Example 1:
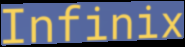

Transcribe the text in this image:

Infinix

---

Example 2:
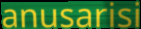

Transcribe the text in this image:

anusarisi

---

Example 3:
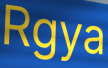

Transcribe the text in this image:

Rgya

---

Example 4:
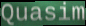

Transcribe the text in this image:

Quasim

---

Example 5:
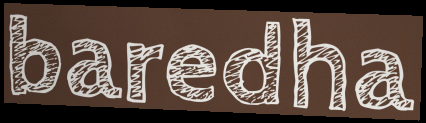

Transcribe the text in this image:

baredha